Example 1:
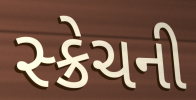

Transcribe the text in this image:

સ્ક્રેચની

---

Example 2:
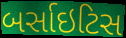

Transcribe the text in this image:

બર્સાઇટિસ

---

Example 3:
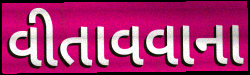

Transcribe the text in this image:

વીતાવવાના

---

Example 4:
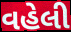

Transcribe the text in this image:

વહેલી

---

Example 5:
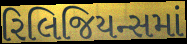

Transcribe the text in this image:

રિલિજિયન્સમાં